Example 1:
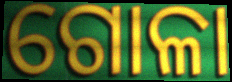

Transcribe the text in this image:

ଗୋଳା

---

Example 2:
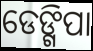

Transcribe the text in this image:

ଡେଙ୍ଗିପା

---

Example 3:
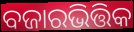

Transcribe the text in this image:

ବଜାରଭିତ୍ତିକ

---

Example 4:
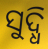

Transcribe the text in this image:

ସୁଦ୍ଧି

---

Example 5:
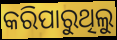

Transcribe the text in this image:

କରିପାରୁଥିଲୁ